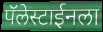
पॅलेस्टाईनला